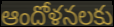
ఆందోళనలకు